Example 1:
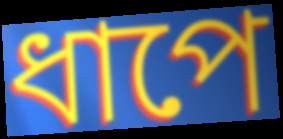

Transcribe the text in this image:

ধাপে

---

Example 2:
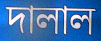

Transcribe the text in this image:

দালাল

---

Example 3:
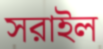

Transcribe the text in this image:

সরাইল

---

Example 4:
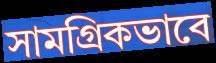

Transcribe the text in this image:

সামগ্রিকভাবে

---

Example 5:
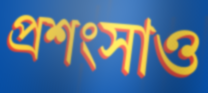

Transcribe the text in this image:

প্রশংসাও